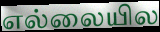
எல்லையில